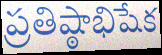
ప్రతిష్ఠాభిషేక